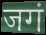
जगं